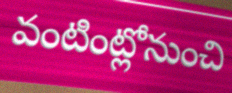
వంటింట్లోనుంచి